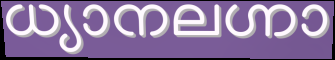
ധ്യാനലഗ്നാ